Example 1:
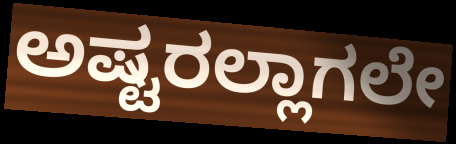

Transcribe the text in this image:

ಅಷ್ಟರಲ್ಲಾಗಲೇ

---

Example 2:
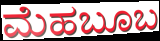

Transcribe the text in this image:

ಮೆಹಬೂಬ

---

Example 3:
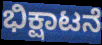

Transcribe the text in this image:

ಭಿಕ್ಷಾಟನೆ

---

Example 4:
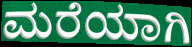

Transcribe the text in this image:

ಮರೆಯಾಗಿ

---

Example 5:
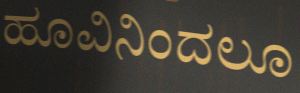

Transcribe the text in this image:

ಹೂವಿನಿಂದಲೂ